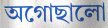
অগোছালো